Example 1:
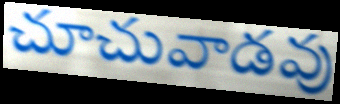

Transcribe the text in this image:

చూచువాడవు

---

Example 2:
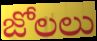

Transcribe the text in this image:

జోలలు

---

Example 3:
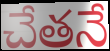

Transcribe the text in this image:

చేతనే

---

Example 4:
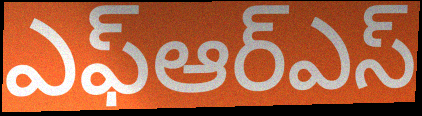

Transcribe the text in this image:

ఎఫ్ఆర్ఎస్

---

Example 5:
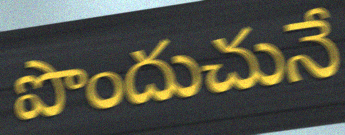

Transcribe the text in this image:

పొందుచునే